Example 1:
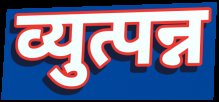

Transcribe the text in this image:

व्युत्पन्न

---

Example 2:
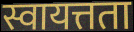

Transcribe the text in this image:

स्वायत्तता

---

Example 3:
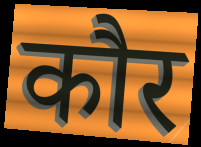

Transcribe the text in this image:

कौर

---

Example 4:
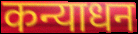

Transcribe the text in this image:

कन्याधन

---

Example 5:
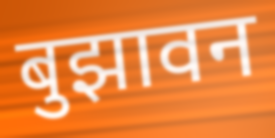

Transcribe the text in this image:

बुझावन